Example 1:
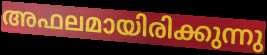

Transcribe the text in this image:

അഫലമായിരിക്കുന്നു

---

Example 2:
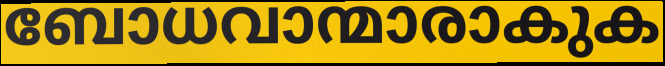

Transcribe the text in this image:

ബോധവാന്മാരാകുക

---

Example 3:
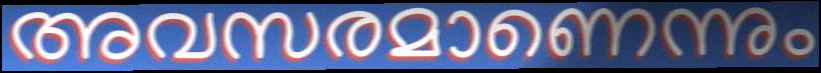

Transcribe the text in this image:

അവസരമാണെന്നും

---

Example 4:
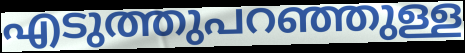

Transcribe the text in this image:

എടുത്തുപറഞ്ഞുള്ള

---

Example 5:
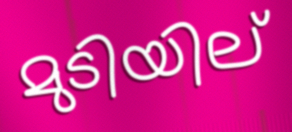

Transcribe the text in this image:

മുടിയില്